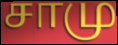
சாமு